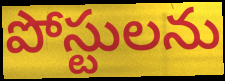
పోస్టులను